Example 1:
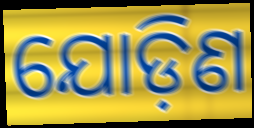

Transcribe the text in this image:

ଯୋଡ଼ିଣ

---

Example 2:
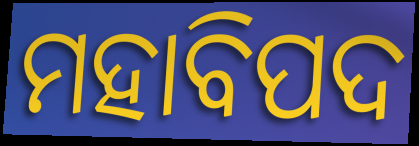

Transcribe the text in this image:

ମହାବିପଦ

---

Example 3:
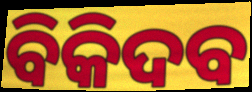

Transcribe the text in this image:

ବିକିଦବ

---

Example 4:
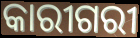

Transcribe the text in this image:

କାରୀଗରୀ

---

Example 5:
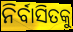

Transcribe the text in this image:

ନିର୍ବାସିତକୁ